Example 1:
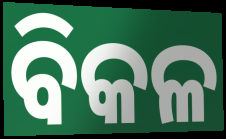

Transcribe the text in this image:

ବିକଳ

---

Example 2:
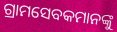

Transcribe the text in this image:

ଗ୍ରାମସେବକମାନଙ୍କୁ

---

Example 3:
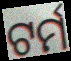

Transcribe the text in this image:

ଟର୍ମ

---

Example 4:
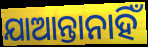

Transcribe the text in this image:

ଯାଆନ୍ତାନାହିଁ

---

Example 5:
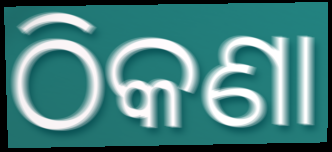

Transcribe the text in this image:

ଠିକଣା